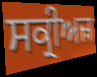
ਸਕ੍ਰੀਅਜ਼